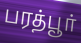
பரத்பூர்